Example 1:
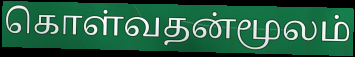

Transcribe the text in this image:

கொள்வதன்மூலம்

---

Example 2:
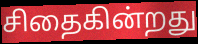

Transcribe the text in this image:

சிதைகின்றது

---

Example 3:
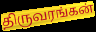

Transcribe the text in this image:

திருவரங்கன்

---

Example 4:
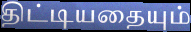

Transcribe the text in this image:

திட்டியதையும்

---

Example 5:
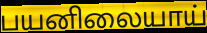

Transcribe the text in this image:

பயனிலையாய்